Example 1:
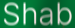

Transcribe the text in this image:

Shab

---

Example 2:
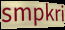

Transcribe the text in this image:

smpkri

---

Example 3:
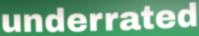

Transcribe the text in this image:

underrated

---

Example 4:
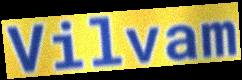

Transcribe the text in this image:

Vilvam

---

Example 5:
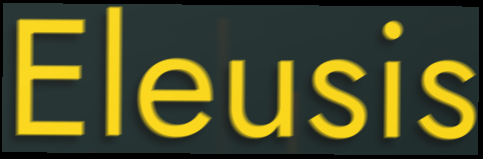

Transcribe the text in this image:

Eleusis